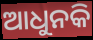
ଆଧୁନକି